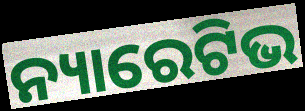
ନ୍ୟାରେଟିଭ